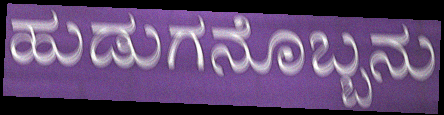
ಹುಡುಗನೊಬ್ಬನು